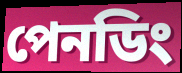
পেনডিং